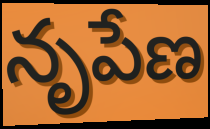
నృపేణ